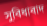
সুবিধাবাদ